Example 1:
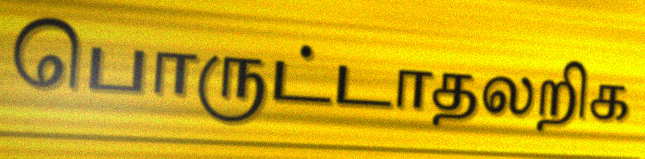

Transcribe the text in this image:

பொருட்டாதலறிக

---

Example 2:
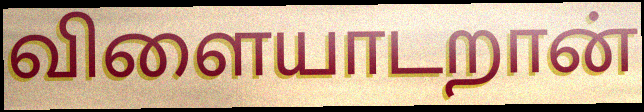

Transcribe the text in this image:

விளையாடறான்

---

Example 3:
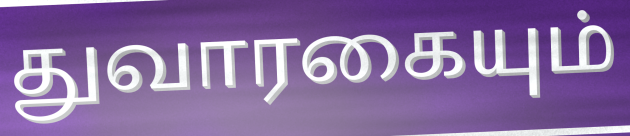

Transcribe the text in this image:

துவாரகையும்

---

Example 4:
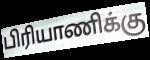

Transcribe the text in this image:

பிரியாணிக்கு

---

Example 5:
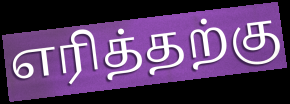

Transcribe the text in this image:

எரித்தற்கு